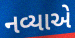
નવ્યાએ